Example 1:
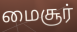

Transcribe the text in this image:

மைசூர்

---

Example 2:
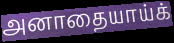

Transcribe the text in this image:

அனாதையாய்க்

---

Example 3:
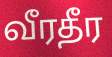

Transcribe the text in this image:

வீரதீர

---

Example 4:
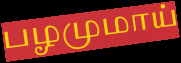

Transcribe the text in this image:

பழமுமாய்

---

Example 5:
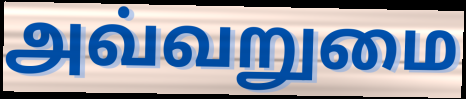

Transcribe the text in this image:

அவ்வறுமை